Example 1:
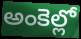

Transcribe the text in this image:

అంకెల్లో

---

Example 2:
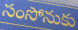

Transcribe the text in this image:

సంసోనుకు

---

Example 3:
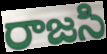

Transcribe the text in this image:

రాజసి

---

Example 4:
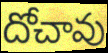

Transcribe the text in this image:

దోచావు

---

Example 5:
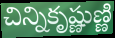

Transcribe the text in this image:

చిన్నికృష్ణుణ్ణి